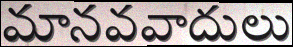
మానవవాదులు